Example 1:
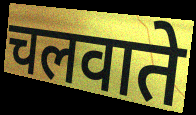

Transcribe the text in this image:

चलवाते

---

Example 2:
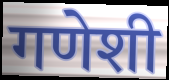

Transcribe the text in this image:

गणेशी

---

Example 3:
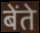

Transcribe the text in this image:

बेंते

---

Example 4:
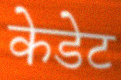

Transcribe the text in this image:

केडेट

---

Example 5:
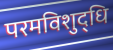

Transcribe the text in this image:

परमविशुद्धि